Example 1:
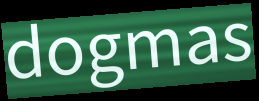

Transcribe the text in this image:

dogmas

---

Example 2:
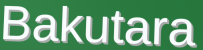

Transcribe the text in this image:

Bakutara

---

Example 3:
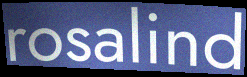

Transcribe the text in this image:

rosalind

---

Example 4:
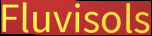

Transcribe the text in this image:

Fluvisols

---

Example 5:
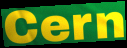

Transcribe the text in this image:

Cern